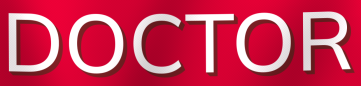
DOCTOR